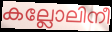
കല്ലോലിനീ